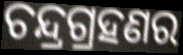
ଚନ୍ଦ୍ରଗ୍ରହଣର